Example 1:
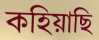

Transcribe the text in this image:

কহিয়াছি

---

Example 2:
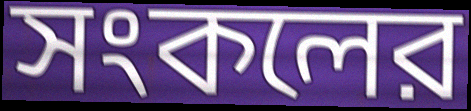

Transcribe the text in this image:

সংকলের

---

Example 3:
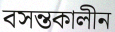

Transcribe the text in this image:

বসন্তকালীন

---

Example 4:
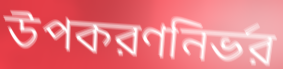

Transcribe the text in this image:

উপকরণনির্ভর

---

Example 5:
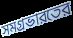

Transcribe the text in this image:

সমগ্রভারতের